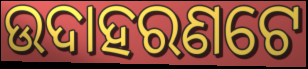
ଉଦାହରଣଟେ